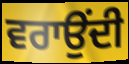
ਵਰਾਉਂਦੀ